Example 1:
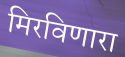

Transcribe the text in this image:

मिरविणारा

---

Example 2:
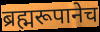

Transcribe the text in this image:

ब्रह्मरूपानेच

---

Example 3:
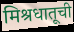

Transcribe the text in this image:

मिश्रधातूची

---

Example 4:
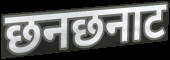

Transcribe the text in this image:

छनछनाट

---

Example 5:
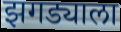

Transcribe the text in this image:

झगड्याला